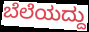
ಬೆಲೆಯದ್ದು